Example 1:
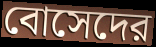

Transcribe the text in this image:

বোসেদের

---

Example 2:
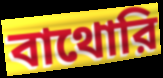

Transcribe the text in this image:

বাথোরি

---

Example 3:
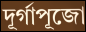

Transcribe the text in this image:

দূর্গাপূজো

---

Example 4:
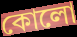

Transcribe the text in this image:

কোলো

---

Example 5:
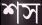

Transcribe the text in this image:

শস